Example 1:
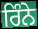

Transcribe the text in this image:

ਰਿੰਨੇ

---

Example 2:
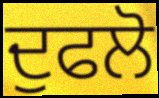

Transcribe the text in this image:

ਦੁਫਲੋ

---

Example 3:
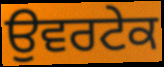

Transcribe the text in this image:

ਉਵਰਟੇਕ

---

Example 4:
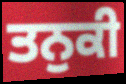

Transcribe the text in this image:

ਤਨੁਕੀ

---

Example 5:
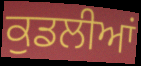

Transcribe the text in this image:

ਕੁਡਲੀਆਂ